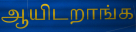
ஆயிடறாங்க